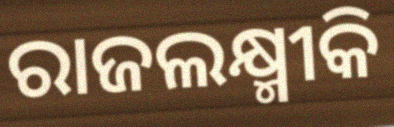
ରାଜଲକ୍ଷ୍ମୀକି